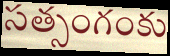
సత్సంగంకు